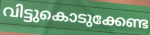
വിട്ടുകൊടുക്കേണ്ട